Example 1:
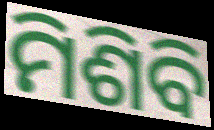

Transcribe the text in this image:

ମିଶିବି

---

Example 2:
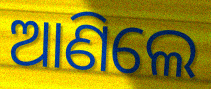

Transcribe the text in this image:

ଆଣିଲେ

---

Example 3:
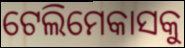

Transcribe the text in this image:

ଟେଲିମେକାସକୁ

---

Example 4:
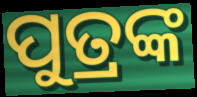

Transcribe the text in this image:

ପୁତ୍ରଙ୍କ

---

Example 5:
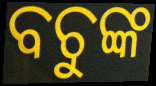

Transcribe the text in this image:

ବଚୁଙ୍କ